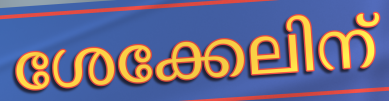
ശേക്കേലിന്